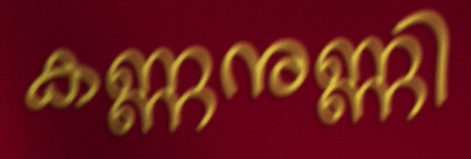
കണ്ണനുണ്ണി